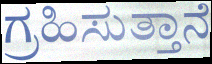
ಗ್ರಹಿಸುತ್ತಾನೆ